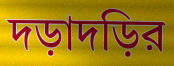
দড়াদড়ির